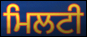
ਮਿਲਟੀ